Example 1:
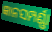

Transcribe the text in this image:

ଜ୍ଞାନସମ୍ପର୍ଣ୍ଣା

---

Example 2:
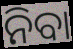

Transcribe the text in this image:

ନିବା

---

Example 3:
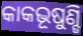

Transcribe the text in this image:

କାକଭୂଷୁଣ୍ଡି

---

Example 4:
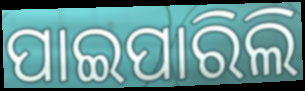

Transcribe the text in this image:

ପାଇପାରିଲି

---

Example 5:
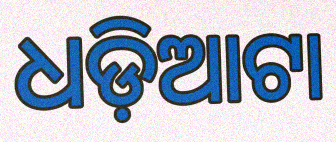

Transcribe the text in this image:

ଧଡ଼ିଆଟା